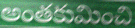
అంతకుమించి